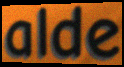
alde